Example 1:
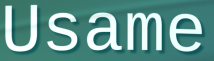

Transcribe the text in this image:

Usame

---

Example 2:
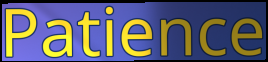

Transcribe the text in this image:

Patience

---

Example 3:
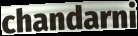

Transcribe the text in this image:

chandarni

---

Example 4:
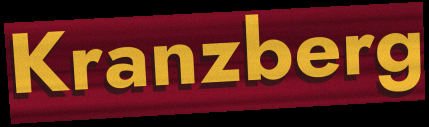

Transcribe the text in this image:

Kranzberg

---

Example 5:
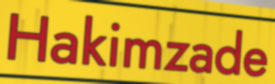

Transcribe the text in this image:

Hakimzade